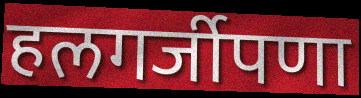
हलगर्जीपणा